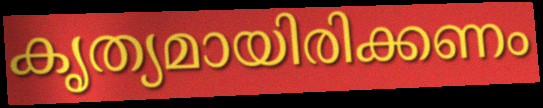
കൃത്യമായിരിക്കണം